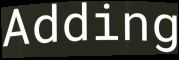
Adding